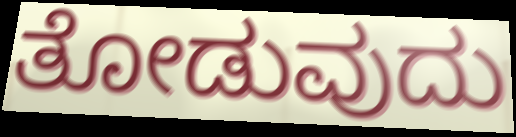
ತೋಡುವುದು